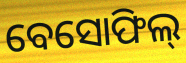
ବେସୋଫିଲ୍